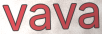
vava